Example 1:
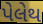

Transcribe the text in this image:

પેલેથ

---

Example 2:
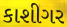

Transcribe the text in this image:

કાશીગર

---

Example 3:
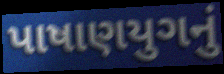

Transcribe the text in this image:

પાષાણયુગનું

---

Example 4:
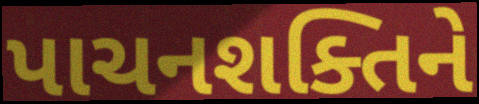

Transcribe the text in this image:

પાચનશક્તિને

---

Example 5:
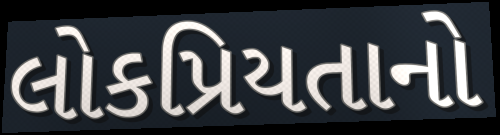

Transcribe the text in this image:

લોકપ્રિયતાનો